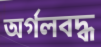
অর্গলবদ্ধ